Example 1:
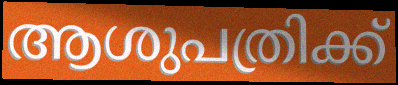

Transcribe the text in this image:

ആശുപത്രിക്ക്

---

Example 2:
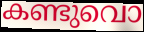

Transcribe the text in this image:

കണ്ടുവൊ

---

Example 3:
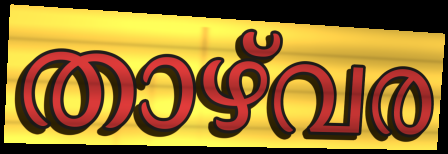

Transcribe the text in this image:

താഴ്‌വര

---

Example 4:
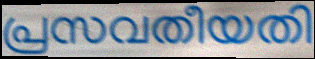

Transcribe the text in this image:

പ്രസവതീയതി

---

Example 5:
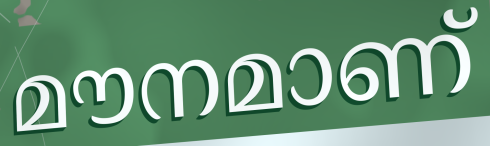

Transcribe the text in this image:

മൗനമാണ്